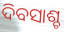
ଦିବସାଶ୍ଚ